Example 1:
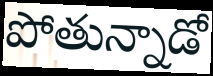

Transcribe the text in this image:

పోతున్నాడో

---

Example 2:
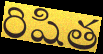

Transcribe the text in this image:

రిషిత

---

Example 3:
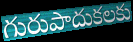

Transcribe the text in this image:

గురుపాదుకలకు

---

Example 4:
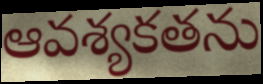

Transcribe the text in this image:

ఆవశ్యకతను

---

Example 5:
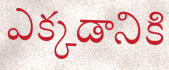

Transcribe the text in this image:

ఎక్కడానికి